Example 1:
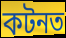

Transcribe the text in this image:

কটনত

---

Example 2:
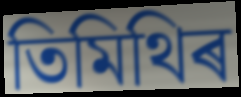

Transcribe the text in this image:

তিমিথিৰ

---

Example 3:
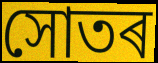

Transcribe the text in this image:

সোতৰ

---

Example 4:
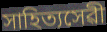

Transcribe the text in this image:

সাহিত্যসেৱী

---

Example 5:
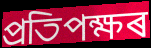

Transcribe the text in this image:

প্ৰতিপক্ষৰ